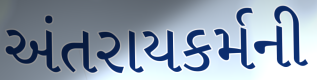
અંતરાયકર્મની